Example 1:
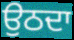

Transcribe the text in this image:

ਉਠਦਾ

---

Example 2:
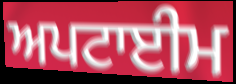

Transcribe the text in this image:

ਅਪਟਾਈਮ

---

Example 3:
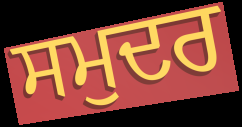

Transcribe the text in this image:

ਸਮੁਦਰ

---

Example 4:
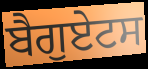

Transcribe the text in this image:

ਬੈਗੁਏਟਸ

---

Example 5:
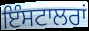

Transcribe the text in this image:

ਇੰਸਟਾਲਰਾਂ